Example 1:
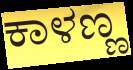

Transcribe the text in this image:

ಕಾಳಣ್ಣ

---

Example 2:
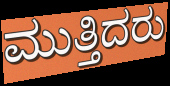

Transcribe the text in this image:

ಮುತ್ತಿದರು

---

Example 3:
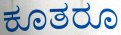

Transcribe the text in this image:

ಕೂತರೂ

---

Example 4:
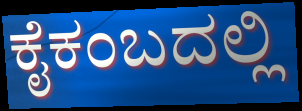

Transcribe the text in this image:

ಕೈಕಂಬದಲ್ಲಿ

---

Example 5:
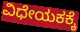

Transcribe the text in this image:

ವಿಧೇಯಕಕ್ಕೆ